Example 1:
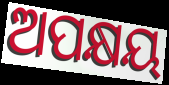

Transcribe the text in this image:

ଅପକ୍ଷୟ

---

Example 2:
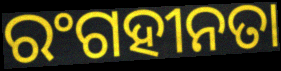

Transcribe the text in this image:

ରଂଗହୀନତା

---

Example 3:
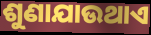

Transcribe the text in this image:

ଶୁଣାଯାଉଥାଏ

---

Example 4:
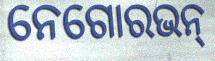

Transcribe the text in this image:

ନେଗୋରଭନ୍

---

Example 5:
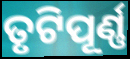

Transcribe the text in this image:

ତୃଟିପୂର୍ଣ୍ଣ